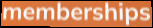
memberships